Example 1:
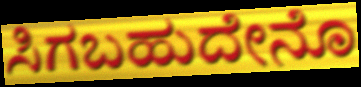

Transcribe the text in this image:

ಸಿಗಬಹುದೇನೊ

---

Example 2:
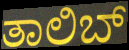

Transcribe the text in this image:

ತಾಲಿಬ್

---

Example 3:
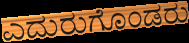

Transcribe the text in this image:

ಎದುರುಗೊಂಡರು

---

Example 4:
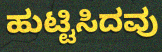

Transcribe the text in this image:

ಹುಟ್ಟಿಸಿದವು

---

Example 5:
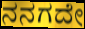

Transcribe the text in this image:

ನನಗದೇ